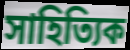
সাহিত্যিক